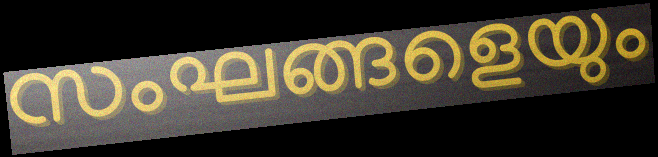
സംഘങ്ങളെയും